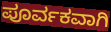
ಪೂರ್ವಕವಾಗಿ